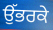
ਉੱਭਰਕੇ